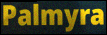
Palmyra